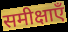
समीक्षाएँ